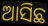
ଆସିଛ